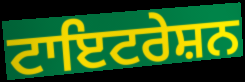
ਟਾਇਟਰੇਸ਼ਨ